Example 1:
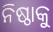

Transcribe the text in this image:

ନିଷ୍ଠାକୁ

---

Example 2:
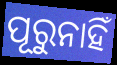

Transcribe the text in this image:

ପୂରୁନାହିଁ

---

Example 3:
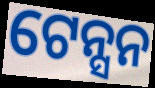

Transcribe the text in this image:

ଟେନ୍ସନ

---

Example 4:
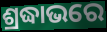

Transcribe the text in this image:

ଶ୍ରଦ୍ଧାଭରେ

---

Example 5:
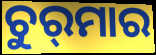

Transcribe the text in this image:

ଚୁର୍‍ମାର